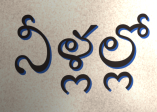
నీళ్లల్లో